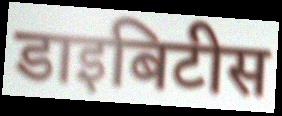
डाइबिटीस